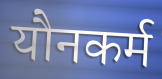
यौनकर्म